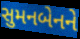
સુમનબેનને